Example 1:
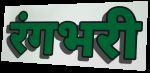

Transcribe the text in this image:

रंगभरी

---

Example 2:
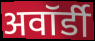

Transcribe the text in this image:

अवॉर्डी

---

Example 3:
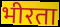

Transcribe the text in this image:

भीरता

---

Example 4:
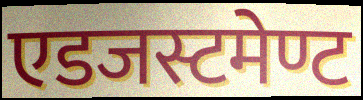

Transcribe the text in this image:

एडजस्टमेण्ट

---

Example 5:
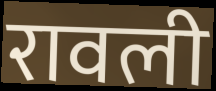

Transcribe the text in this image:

रावली